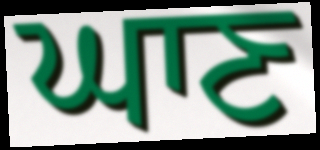
ਘਾਣ